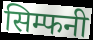
सिम्फनी